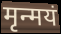
मृन्मयं